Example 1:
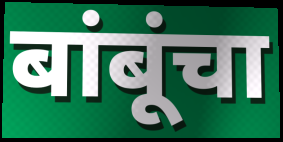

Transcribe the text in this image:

बांबूंचा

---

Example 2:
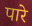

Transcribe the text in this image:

पारे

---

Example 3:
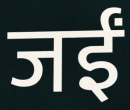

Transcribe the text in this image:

जईं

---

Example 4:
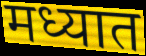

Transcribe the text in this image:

मध्यात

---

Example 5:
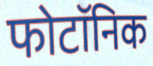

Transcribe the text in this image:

फोटॉनिक